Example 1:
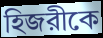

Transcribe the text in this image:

হিজরীকে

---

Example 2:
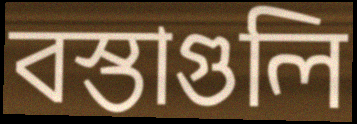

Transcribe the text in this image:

বস্তাগুলি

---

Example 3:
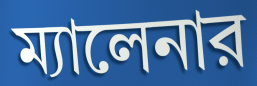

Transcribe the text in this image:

ম্যালেনার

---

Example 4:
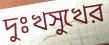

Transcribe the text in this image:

দুঃখসুখের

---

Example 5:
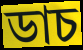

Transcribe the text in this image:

ডাচ